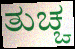
ತುಚ್ಚ